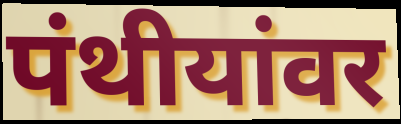
पंथीयांवर